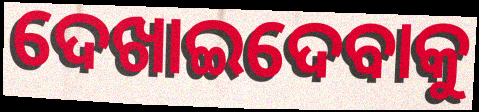
ଦେଖାଇଦେବାକୁ